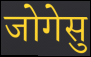
जोगेसु